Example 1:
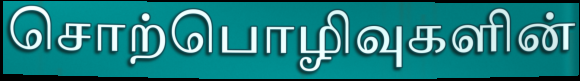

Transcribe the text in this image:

சொற்பொழிவுகளின்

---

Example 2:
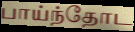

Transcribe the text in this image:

பாய்ந்தோட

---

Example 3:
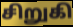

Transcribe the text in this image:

சிறுகி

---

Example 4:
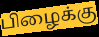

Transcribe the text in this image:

பிழைக்கு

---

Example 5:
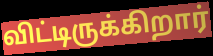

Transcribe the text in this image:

விட்டிருக்கிறார்